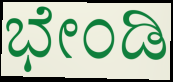
ಭೇಂಡಿ